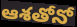
ఆశతోనో